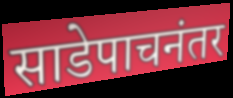
साडेपाचनंतर